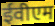
ईवीएम